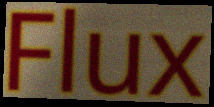
Flux